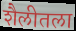
शैलीतला